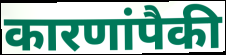
कारणांपैकी